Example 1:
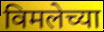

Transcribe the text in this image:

विमलेच्या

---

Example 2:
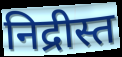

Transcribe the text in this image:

निद्रीस्त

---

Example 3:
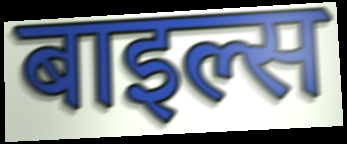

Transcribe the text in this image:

बाइल्स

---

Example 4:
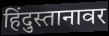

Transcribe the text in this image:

हिंदुस्तानावर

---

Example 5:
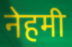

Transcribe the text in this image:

नेहमी